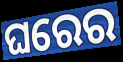
ଘରେର